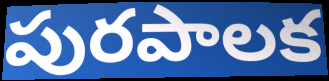
పురపాలక